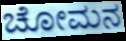
ಚೋಮನ